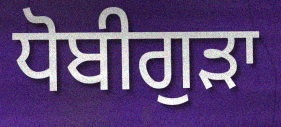
ਧੋਬੀਗੁੜਾ